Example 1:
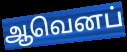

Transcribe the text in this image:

ஆவெனப்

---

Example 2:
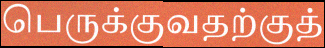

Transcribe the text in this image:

பெருக்குவதற்குத்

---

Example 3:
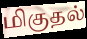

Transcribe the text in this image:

மிகுதல்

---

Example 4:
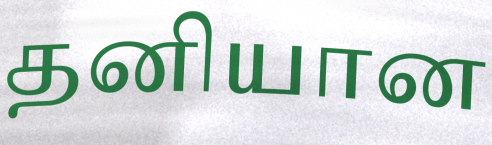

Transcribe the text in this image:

தனியான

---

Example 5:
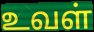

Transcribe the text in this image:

உவள்